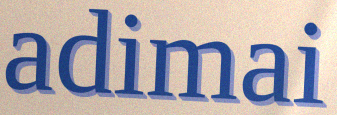
adimai